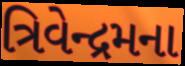
ત્રિવેન્દ્રમના